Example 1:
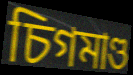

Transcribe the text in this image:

চিগমাণ্ড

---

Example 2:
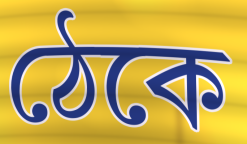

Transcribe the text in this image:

ঠেকে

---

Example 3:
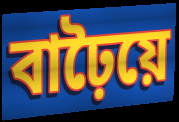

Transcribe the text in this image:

বাঢ়ৈয়ে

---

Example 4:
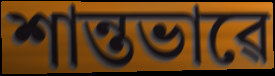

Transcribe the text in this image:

শান্তভাৱে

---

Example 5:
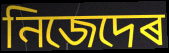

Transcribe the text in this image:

নিজেদেৰ